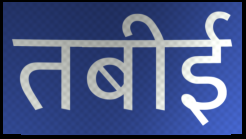
तबीई